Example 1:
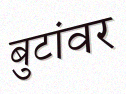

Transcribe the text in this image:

बुटांवर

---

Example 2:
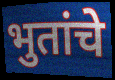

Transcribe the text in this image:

भुतांचे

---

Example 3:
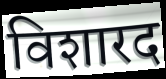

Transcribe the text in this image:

विशारद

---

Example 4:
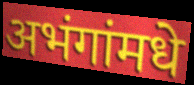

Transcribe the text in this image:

अभंगांमधे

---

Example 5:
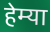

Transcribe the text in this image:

हेम्या